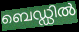
ബെഡ്ഡിൽ